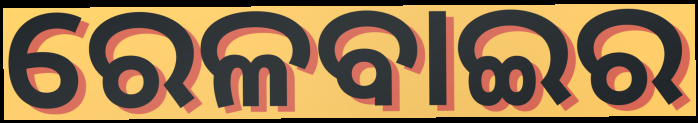
ରେଳବାଇର